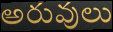
అరువులు